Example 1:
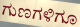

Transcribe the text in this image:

ಗುಣಗಳಿಗೂ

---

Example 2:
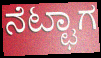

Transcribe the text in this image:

ನೆಟ್ಟಾಗ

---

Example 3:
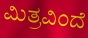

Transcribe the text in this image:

ಮಿತ್ರವಿಂದೆ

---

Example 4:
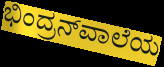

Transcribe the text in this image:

ಭಿಂದ್ರನ್‌ವಾಲೆಯ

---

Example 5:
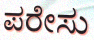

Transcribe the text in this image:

ಪರೇಸು